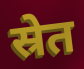
स्रेत